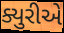
ક્યુરીએ